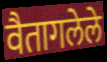
वैतागलेले